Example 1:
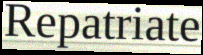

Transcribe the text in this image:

Repatriate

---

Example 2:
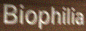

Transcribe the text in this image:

Biophilia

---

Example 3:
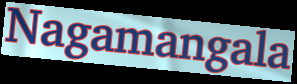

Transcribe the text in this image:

Nagamangala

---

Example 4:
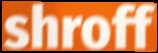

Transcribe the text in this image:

shroff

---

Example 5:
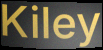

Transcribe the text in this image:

Kiley